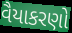
વૈયાકરણો